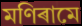
মণিৰামে